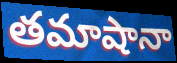
తమాషానా